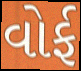
વોર્ફ